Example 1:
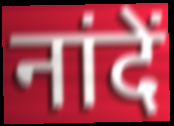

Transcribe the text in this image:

नांदें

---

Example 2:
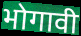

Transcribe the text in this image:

भोगावी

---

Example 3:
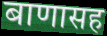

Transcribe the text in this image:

बाणासह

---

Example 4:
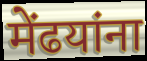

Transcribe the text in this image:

मेंढयांना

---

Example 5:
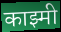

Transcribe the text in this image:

काझ्मी